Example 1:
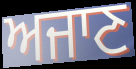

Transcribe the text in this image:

ਅਜਾਣ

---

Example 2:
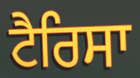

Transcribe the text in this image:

ਟੈਰਿਸਾ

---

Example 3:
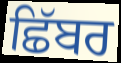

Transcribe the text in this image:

ਛਿੱਬਰ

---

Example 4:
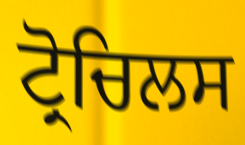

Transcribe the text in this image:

ਟ੍ਰੋਚਿਲਸ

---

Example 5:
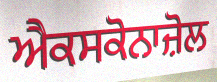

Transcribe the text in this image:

ਐਕਸਕੋਨਾਜ਼ੋਲ